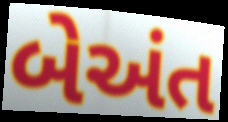
બેઅંત